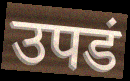
उपडं